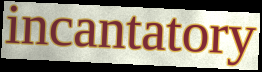
incantatory